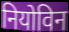
नियोविन